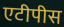
एटीपीस